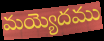
మయ్యెదము